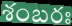
శంబరః